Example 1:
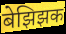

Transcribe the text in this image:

बेझिझक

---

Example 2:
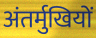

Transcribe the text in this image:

अंतर्मुखियों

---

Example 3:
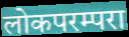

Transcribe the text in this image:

लोकपरम्परा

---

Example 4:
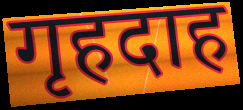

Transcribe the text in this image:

गृहदाह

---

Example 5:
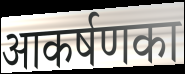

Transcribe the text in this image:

आकर्षणका